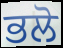
ਭਲੋ